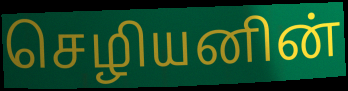
செழியனின்